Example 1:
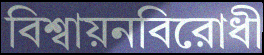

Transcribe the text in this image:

বিশ্বায়নবিরোধী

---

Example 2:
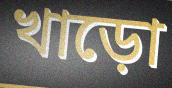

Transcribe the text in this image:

খাড়ো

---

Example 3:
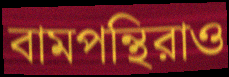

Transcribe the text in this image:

বামপন্থিরাও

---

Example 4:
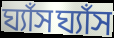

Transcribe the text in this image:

ঘ্যাঁসঘ্যাঁস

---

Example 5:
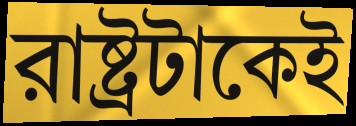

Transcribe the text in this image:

রাষ্ট্রটাকেই